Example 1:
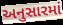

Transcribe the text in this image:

અનુસારમાં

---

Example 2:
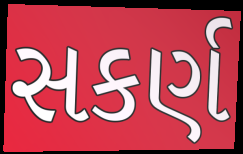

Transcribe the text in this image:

સકર્ણ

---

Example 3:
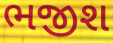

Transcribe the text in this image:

ભજીશ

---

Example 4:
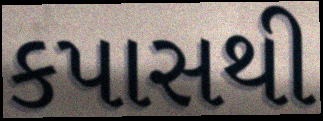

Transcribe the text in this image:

કપાસથી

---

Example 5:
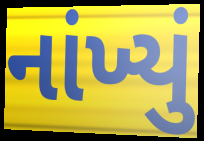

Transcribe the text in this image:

નાંખ્યું